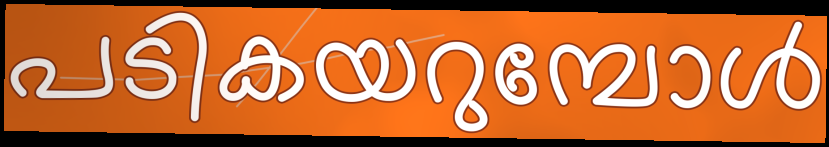
പടികയറുമ്പോൾ